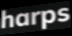
harps